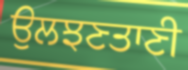
ਉਲਝਣਤਾਣੀ